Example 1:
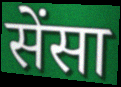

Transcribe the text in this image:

सेंसा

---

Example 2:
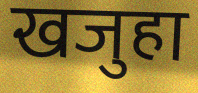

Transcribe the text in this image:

खजुहा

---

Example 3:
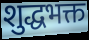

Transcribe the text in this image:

शुद्धभक्त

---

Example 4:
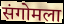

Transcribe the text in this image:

संगोमला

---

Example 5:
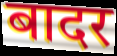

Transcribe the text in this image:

बादर